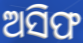
ଅସିଫ